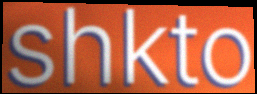
shkto